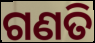
ଗଣତି